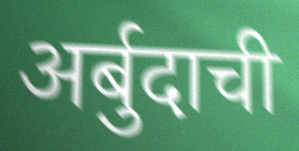
अर्बुदाची